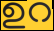
ഉറ